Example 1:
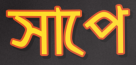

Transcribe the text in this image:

সাপে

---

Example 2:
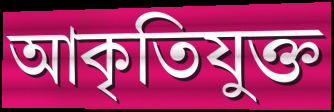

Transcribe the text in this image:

আকৃতিযুক্ত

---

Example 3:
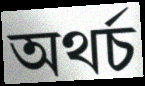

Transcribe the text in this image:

অথৰ্চ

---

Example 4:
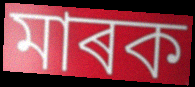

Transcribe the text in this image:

মাৰক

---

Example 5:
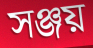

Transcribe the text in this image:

সঞ্জয়